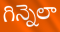
గిన్నెలా